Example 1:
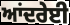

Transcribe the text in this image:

ਆਂਦਰੇਈ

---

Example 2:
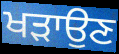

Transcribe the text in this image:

ਖੜਾਉਣ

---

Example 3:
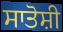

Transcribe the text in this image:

ਸਾਤੋਸ਼ੀ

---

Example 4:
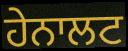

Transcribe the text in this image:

ਹੇਨਾਲਟ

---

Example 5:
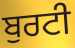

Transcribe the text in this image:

ਬੁਰਟੀ